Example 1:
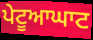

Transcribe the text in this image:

ਪੇਟੂਆਘਾਟ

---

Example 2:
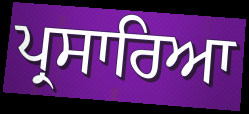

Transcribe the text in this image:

ਪ੍ਰਸਾਰਿਆ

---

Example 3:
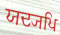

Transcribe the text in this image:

ਯਦ੍ਯਪਿ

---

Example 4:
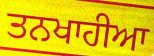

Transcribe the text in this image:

ਤਨਖਾਹੀਆ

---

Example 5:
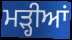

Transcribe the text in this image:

ਮੜ੍ਹੀਆਂ